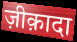
ज़ीक़ादा